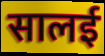
सालई